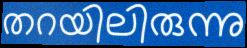
തറയിലിരുന്നു